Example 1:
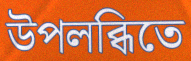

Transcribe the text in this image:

উপলব্ধিতে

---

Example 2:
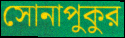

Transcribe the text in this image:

সোনাপুকুর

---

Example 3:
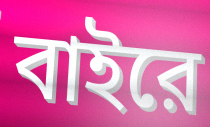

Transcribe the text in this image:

বাইরে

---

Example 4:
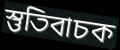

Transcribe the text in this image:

স্তুতিবাচক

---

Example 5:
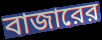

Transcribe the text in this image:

বাজারের